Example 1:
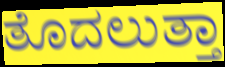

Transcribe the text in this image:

ತೊದಲುತ್ತಾ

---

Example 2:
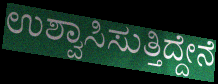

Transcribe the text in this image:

ಉಶ್ವಾಸಿಸುತ್ತಿದ್ದೇನೆ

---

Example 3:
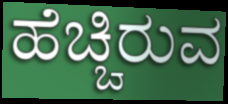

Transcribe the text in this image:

ಹೆಚ್ಚಿರುವ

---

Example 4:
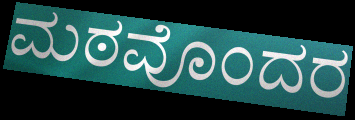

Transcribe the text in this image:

ಮಠವೊಂದರ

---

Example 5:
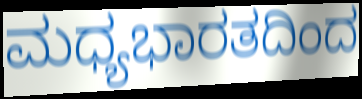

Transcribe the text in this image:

ಮಧ್ಯಭಾರತದಿಂದ